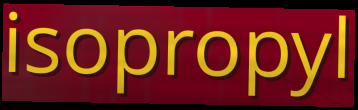
isopropyl